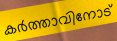
കർത്താവിനോട്